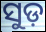
ସୁଡ଼